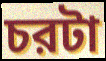
চরটা